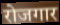
रोजगार